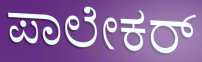
ಪಾಲೇಕರ್